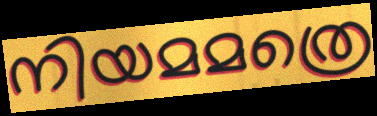
നിയമമത്രെ